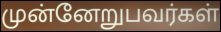
முன்னேறுபவர்கள்